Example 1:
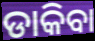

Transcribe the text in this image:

ଡାକିବା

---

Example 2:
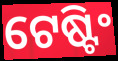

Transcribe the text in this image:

ଟେଷ୍ଟିଂ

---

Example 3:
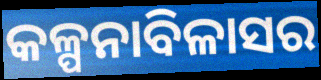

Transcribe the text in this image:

କଳ୍ପନାବିଳାସର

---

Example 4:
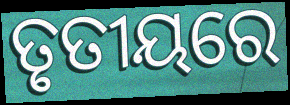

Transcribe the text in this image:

ତୃତୀୟରେ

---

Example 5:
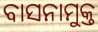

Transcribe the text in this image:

ବାସନାମୁକ୍ତ